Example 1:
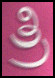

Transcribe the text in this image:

ತ್ರಿ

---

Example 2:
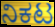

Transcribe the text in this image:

ನಿಕಟ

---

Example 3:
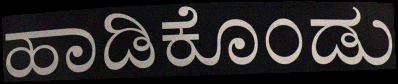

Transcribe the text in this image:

ಹಾಡಿಕೊಂಡು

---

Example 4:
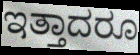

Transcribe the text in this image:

ಇತ್ತಾದರೂ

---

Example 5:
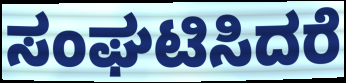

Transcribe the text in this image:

ಸಂಘಟಿಸಿದರೆ